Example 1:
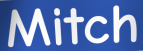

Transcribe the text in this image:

Mitch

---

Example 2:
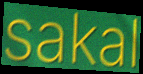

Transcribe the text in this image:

sakal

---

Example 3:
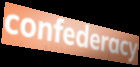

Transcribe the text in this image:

confederacy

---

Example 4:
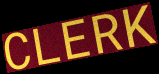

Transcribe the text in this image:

CLERK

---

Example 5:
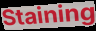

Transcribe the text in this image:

Staining